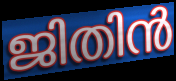
ജിതിൻ